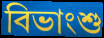
বিভাংশু